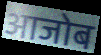
आजोब